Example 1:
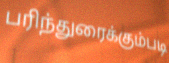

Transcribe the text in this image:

பரிந்துரைக்கும்படி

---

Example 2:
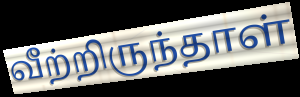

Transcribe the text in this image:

வீற்றிருந்தாள்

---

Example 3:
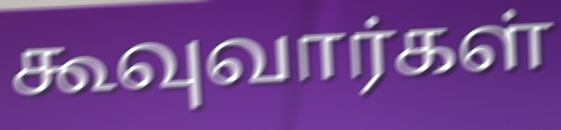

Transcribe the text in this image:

கூவுவார்கள்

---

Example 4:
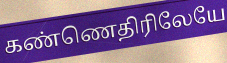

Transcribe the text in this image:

கண்ணெதிரிலேயே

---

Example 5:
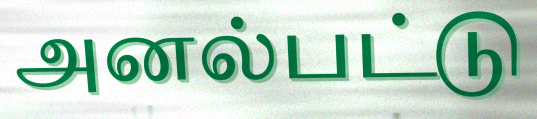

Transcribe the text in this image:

அனல்பட்டு